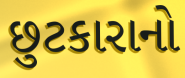
છુટકારાનો